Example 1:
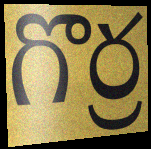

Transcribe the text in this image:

గొర్ర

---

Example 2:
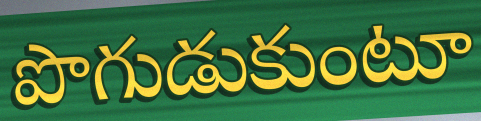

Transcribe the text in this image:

పొగుడుకుంటూ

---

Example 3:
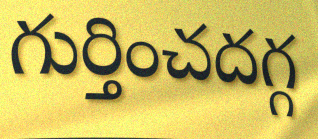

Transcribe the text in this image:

గుర్తించదగ్గ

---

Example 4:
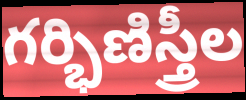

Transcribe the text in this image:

గర్భిణిస్త్రీల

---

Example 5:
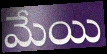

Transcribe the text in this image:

మేయి